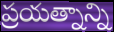
ప్రయత్నాన్ని